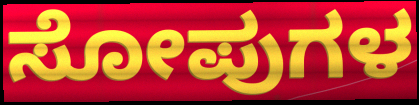
ಸೋಪುಗಳ